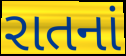
રાતનાં